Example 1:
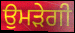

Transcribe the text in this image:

ਉਮੜੇਗੀ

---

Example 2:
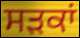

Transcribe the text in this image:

ਸੜਕਾਂ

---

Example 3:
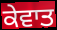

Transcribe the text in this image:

ਕੇਵਾਤ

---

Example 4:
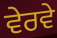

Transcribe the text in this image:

ਵੇਰਵੇ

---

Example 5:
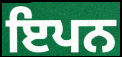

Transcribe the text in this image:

ਇਪਨ